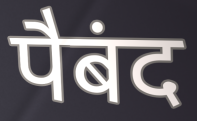
पैबंद